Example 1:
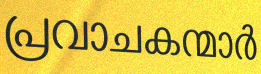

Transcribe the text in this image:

പ്രവാചകന്മാർ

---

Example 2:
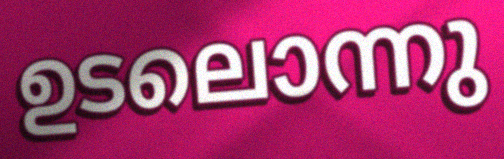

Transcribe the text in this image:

ഉടലൊന്നു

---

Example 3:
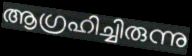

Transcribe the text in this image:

ആഗ്രഹിച്ചിരുന്നു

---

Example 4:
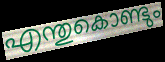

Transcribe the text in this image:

എന്തുകൊണ്ടും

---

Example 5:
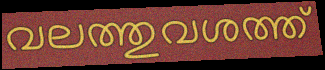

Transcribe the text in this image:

വലത്തുവശത്ത്